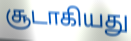
சூடாகியது